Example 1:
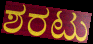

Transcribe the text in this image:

ಶರಟು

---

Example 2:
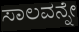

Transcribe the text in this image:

ಸಾಲವನ್ನೇ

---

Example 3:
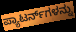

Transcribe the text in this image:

ಪ್ಯಾಟರ್ನ್‌ಗಳನ್ನು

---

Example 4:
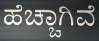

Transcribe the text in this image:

ಹೆಚ್ಚಾಗಿವೆ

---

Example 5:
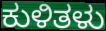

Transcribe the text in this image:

ಕುಳಿತಳು